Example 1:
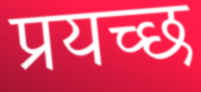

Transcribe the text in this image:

प्रयच्छ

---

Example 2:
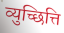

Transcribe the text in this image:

व्युच्छित्ति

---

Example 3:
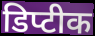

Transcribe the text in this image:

डिप्टीक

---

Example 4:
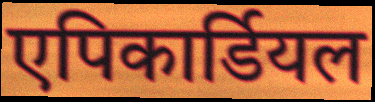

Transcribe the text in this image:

एपिकार्डियल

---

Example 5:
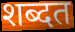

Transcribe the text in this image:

शब्दत